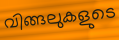
വിങ്ങലുകളുടെ